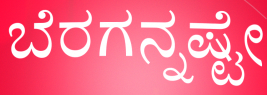
ಬೆರಗನ್ನಷ್ಟೇ